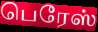
பெரேஸ்